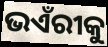
ଭଏଁରୀକୁ